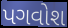
પગવોશ